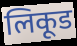
लिकूड